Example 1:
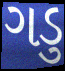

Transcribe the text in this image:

ગડુ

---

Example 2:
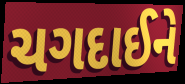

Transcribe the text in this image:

ચગદાઈને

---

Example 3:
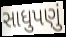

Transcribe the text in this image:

સાધુપણું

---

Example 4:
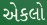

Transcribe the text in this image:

એકલો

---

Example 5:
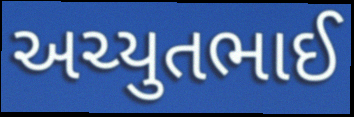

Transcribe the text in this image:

અચ્યુતભાઈ